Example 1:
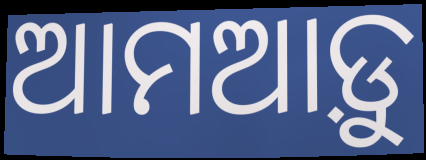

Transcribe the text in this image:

ଆମଆଡ଼ୁ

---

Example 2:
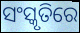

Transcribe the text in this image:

ସଂସ୍କୃତିରେ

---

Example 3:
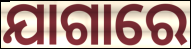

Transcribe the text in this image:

ଯାଗାରେ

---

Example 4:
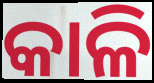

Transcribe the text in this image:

କାଳି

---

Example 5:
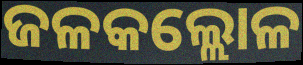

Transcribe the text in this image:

ଜଳକଲ୍ଲୋଳ